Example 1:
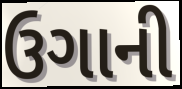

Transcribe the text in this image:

ઉગાની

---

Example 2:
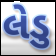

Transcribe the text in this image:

લેડુ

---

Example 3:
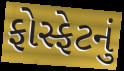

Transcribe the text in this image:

ફોસ્ફેટનું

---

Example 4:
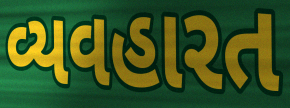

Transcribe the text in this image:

વ્યવહારત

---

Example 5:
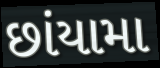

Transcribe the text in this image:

છાંયામા